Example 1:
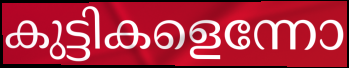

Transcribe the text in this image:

കുട്ടികളെന്നോ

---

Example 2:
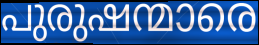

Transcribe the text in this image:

പുരുഷന്മാരെ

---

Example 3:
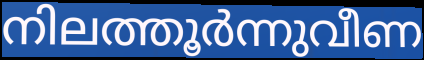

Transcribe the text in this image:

നിലത്തൂർന്നുവീണ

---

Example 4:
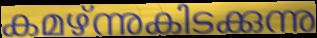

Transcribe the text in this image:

കമഴ്ന്നുകിടക്കുന്നു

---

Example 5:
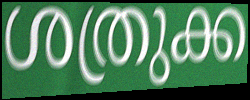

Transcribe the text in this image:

ശത്രുക്ക